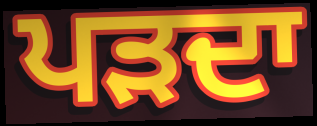
ਪੜਦਾ